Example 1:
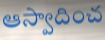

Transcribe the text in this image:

ఆస్వాదించ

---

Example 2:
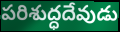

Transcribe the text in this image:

పరిశుద్ధదేవుడు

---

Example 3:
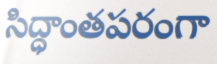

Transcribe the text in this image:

సిద్ధాంతపరంగా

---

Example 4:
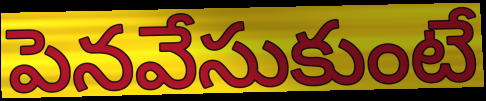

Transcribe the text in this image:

పెనవేసుకుంటే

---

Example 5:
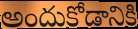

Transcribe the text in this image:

అందుకోడానికి